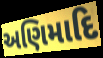
અણિમાદિ